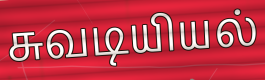
சுவடியியல்